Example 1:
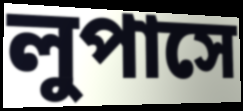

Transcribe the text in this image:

লুপাসে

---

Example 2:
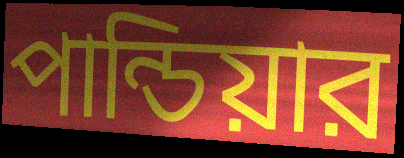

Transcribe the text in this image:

পান্ডিয়ার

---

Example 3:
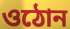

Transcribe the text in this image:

ওঠোন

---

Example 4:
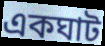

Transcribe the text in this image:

একঘাট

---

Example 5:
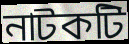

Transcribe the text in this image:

নাটকটি